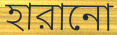
হারানো